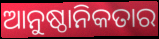
ଆନୁଷ୍ଠାନିକତାର